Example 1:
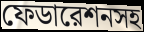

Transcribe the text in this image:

ফেডারেশনসহ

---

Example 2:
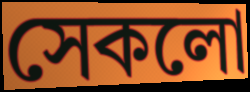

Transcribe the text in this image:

সেকলো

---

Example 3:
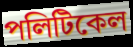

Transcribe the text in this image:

পলিটিকেল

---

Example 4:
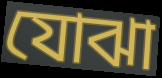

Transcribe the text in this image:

যোঝা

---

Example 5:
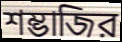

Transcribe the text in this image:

শম্ভাজির